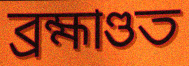
ব্ৰহ্মাণ্ডত